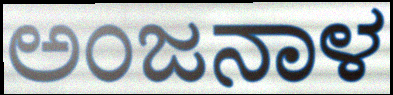
ಅಂಜನಾಳ